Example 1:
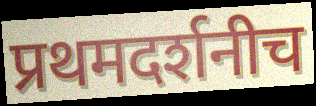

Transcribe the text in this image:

प्रथमदर्शनीच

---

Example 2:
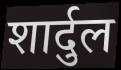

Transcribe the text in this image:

शार्दुल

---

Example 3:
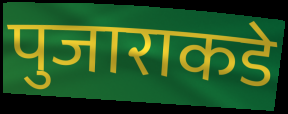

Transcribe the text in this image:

पुजाराकडे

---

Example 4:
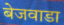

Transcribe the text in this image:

बेजवाडा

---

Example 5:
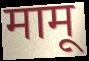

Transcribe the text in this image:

मामू